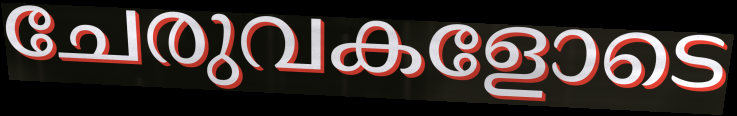
ചേരുവകളോടെ